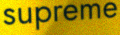
supreme